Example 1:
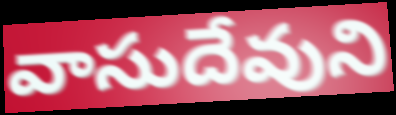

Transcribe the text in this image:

వాసుదేవుని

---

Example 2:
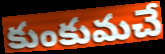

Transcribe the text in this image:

కుంకుమచే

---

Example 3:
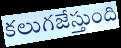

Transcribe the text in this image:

కలుగజేస్తుంది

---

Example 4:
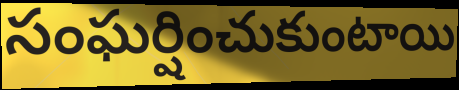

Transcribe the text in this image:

సంఘర్షించుకుంటాయి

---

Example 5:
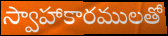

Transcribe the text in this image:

స్వాహాకారములతో